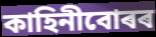
কাহিনীবোৰৰ